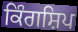
ਕਿੰਗਸ਼ਿਪ